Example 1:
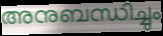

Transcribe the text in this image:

അനുബന്ധിച്ചും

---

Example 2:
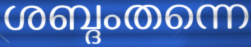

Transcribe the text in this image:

ശബ്ദംതന്നെ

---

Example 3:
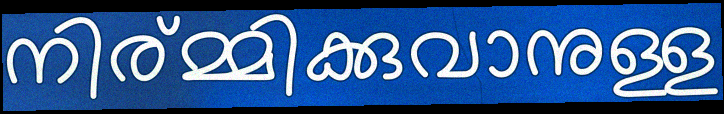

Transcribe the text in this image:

നിര്മ്മിക്കുവാനുള്ള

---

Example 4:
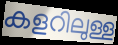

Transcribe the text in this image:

കളറിലുള്ള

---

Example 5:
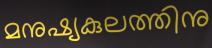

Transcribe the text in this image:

മനുഷ്യകുലത്തിനു